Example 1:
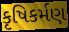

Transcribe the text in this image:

કૃષિકર્મણ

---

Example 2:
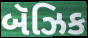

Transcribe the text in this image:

બૅઝિક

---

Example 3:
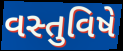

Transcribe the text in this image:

વસ્તુવિષે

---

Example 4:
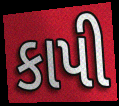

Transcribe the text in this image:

કાપી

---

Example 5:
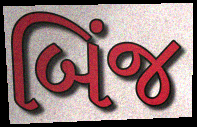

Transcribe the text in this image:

બિંજ